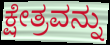
ಕ್ಷೇತ್ರವನ್ನು